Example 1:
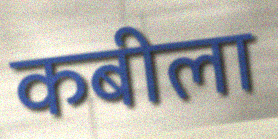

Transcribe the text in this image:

कबीला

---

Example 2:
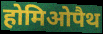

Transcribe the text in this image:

होमिओपैथ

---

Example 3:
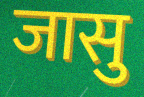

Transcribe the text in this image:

जासु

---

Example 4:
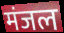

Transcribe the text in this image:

मंजल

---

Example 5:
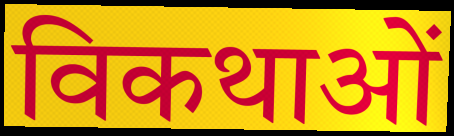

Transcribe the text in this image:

विकथाओं